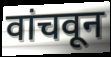
वांचवून